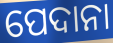
ପେଦାନା